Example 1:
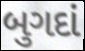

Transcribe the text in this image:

બુગદાં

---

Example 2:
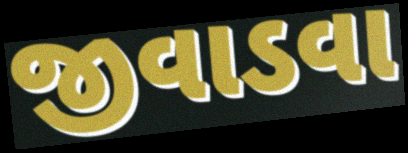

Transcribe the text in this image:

જીવાડવા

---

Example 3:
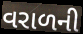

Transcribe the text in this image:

વરાળની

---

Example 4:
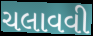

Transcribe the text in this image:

ચલાવવી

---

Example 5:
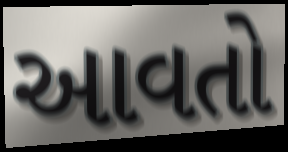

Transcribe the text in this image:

આવતો